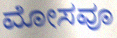
ಮೋಸವೂ